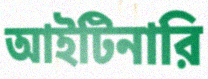
আইটিনারি